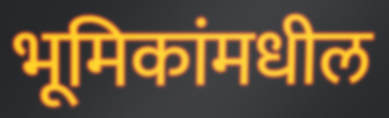
भूमिकांमधील